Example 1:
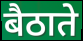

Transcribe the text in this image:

बैठाते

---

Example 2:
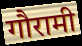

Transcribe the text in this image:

गौरामी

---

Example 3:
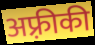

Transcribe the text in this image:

अफ़्रीकी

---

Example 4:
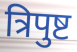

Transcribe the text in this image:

त्रिपुष्ट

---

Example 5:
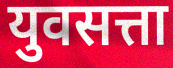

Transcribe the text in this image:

युवसत्ता